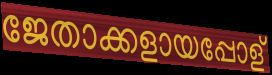
ജേതാക്കളായപ്പോള്